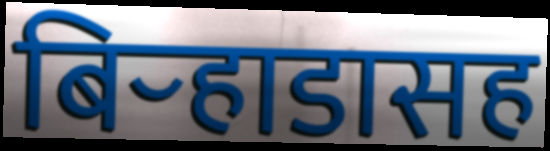
बिऱ्हाडासह